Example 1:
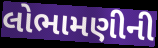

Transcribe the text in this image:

લોભામણીની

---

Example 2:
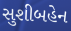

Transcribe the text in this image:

સુશીબહેન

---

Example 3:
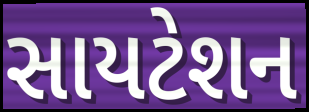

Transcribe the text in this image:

સાયટેશન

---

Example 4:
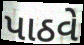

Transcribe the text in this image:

પાઠવે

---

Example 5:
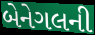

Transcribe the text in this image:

બેનેગલની